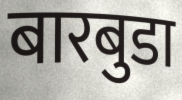
बारबुडा